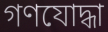
গণযোদ্ধা